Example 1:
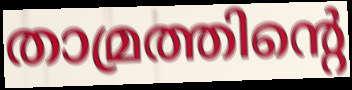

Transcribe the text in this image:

താമ്രത്തിന്റെ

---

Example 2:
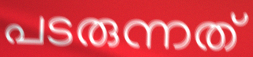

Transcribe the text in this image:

പടരുന്നത്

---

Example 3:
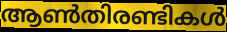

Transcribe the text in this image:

ആൺതിരണ്ടികൾ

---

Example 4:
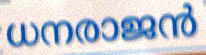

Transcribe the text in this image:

ധനരാജൻ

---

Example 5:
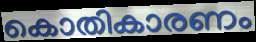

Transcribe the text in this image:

കൊതികാരണം